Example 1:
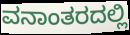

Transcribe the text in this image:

ವನಾಂತರದಲ್ಲಿ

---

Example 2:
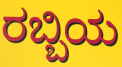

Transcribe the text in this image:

ರಬ್ಬಿಯ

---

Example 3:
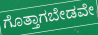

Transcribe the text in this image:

ಗೊತ್ತಾಗಬೇಡವೇ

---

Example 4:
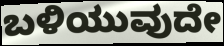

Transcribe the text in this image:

ಬಳಿಯುವುದೇ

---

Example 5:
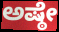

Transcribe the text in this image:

ಅಷ್ಠೇ